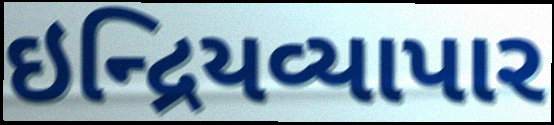
ઇન્દ્રિયવ્યાપાર